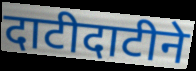
दाटीदाटीने